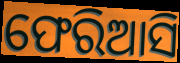
ଫେରିଆସି